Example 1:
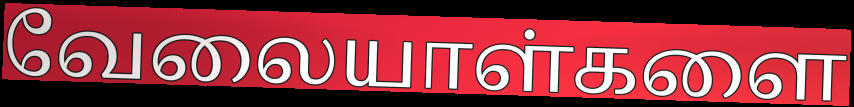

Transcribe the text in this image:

வேலையாள்களை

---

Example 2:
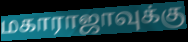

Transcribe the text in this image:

மகாராஜாவுக்கு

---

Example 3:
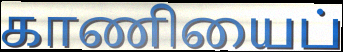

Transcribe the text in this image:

காணியைப்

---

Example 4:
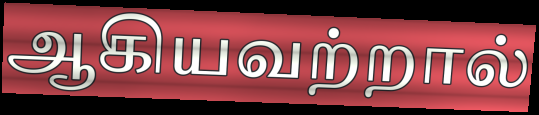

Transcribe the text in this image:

ஆகியவற்றால்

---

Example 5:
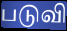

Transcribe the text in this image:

படுவி